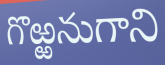
గొఱ్ఱనుగాని